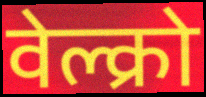
वेल्क्रो